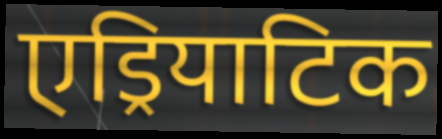
एड्रियाटिक